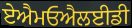
ਏਐਮਓਐਲਈਡੀ